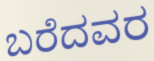
ಬರೆದವರ